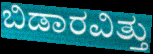
ಬಿಡಾರವಿತ್ತು